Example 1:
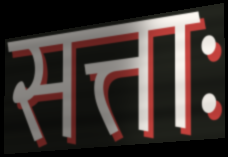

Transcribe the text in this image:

सत्ताः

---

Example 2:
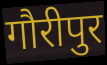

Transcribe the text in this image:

गौरीपुर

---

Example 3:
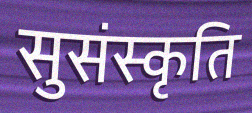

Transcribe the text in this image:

सुसंस्कृति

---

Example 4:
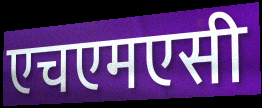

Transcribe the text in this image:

एचएमएसी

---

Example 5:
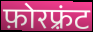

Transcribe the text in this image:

फ़ोरफ़्रंट